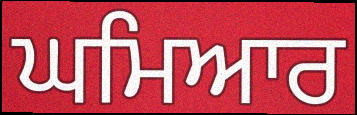
ਘਮਿਆਰ